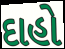
દાહો